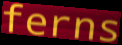
ferns